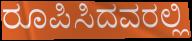
ರೂಪಿಸಿದವರಲ್ಲಿ